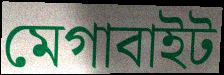
মেগাবাইট